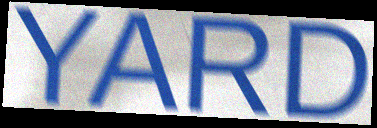
YARD